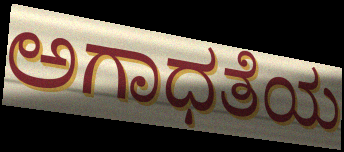
ಅಗಾಧತೆಯ